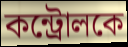
কন্ট্রোলকে